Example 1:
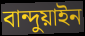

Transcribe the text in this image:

বান্দুয়াইন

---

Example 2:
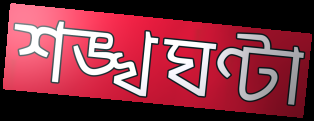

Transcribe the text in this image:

শঙ্খঘণ্টা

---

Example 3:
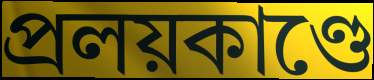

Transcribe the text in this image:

প্রলয়কাণ্ডে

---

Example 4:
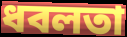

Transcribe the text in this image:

ধবলতা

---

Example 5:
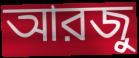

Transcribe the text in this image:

আরজু